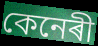
কেনেৰী